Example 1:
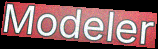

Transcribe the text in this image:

Modeler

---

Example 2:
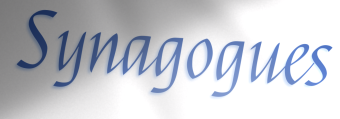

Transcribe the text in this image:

Synagogues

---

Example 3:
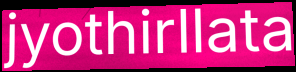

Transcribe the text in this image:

jyothirllata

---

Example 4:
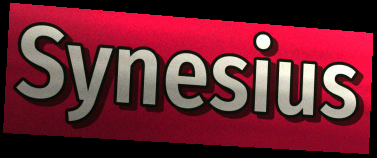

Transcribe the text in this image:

Synesius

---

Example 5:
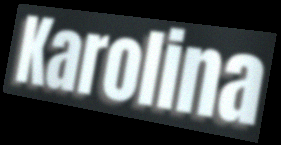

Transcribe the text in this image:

Karolina